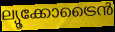
ല്യൂക്കോട്രൈൻ